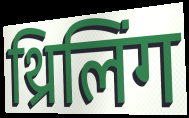
थ्रिलिंग